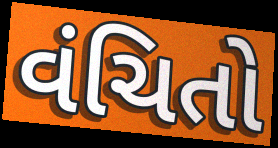
વંચિતો